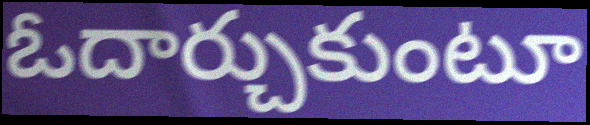
ఓదార్చుకుంటూ